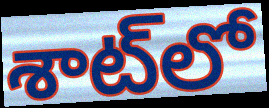
శాట్‌లో